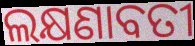
ଲକ୍ଷଣାବତୀ